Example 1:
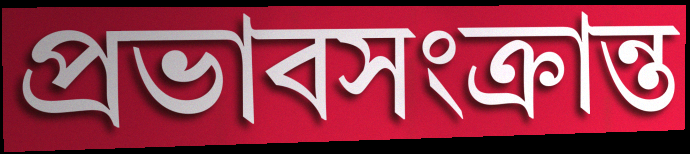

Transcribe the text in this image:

প্রভাবসংক্রান্ত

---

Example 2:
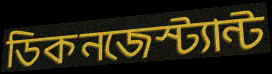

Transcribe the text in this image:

ডিকনজেস্ট্যান্ট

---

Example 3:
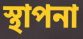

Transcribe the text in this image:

স্থাপনা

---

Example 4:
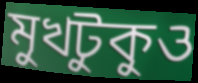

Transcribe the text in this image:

মুখটুকুও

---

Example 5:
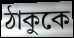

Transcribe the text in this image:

ঠাকুকে